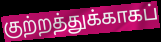
குற்றத்துக்காகப்